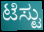
ಟೆಸ್ಟು